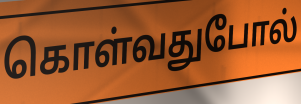
கொள்வதுபோல்